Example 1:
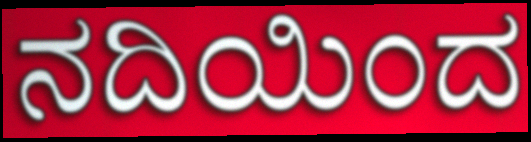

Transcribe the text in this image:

ನದಿಯಿಂದ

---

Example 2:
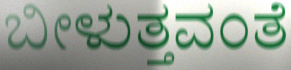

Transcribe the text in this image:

ಬೀಳುತ್ತವಂತೆ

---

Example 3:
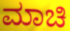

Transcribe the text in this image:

ಮಾಚಿ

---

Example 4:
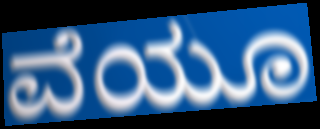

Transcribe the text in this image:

ವೆಯೂ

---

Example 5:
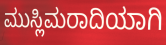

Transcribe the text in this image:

ಮುಸ್ಲಿಮರಾದಿಯಾಗಿ